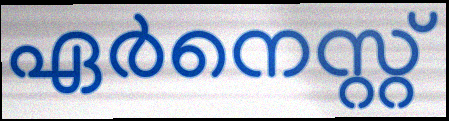
ഏർനെസ്റ്റ്